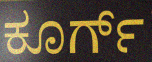
ಕೂರ್ಗ್